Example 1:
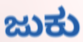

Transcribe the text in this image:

ಜುಕು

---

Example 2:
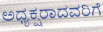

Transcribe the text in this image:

ಅಧ್ಯಕ್ಷರಾದವರಿಗೆ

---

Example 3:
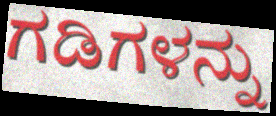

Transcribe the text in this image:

ಗಡಿಗಳನ್ನು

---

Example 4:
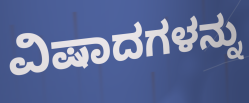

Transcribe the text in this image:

ವಿಷಾದಗಳನ್ನು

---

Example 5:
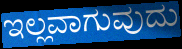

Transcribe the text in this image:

ಇಲ್ಲವಾಗುವುದು